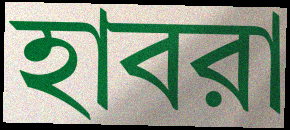
হাবরা